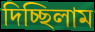
দিচ্ছিলাম